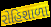
રોહિશાળા